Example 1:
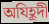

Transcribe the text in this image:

অযিহূদী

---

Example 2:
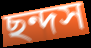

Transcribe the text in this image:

ছন্দস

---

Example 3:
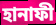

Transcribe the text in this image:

হানাফী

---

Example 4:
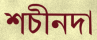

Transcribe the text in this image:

শচীনদা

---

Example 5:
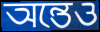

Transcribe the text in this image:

অন্তেও